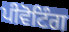
ਪੀਵੋਟਿੰਗ